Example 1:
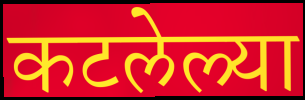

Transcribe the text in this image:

कटलेल्या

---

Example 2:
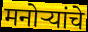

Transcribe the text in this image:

मनोऱ्यांचे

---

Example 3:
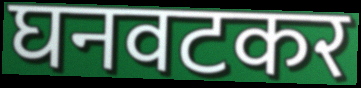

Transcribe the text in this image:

घनवटकर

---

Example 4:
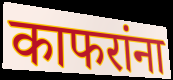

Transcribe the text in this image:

काफरांना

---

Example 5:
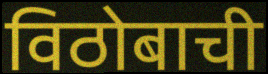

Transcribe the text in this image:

विठोबाची